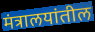
मंत्रालयांतील